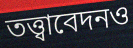
তত্ত্বাবেদনও